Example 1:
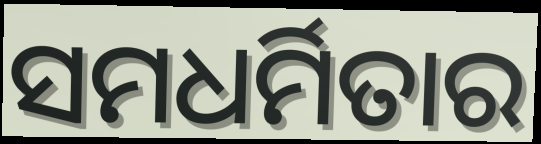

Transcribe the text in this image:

ସମଧର୍ମିତାର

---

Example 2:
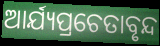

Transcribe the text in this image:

ଆର୍ଯ୍ୟପ୍ରଚେତାବୃନ୍ଦ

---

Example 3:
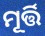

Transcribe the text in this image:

ମୂର୍ତ୍ତି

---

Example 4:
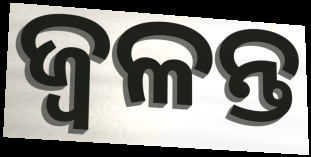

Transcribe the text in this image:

ଜ୍ବଳନ୍ତ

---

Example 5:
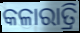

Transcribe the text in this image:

କଳାରାତ୍ରି